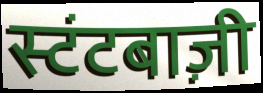
स्टंटबाज़ी